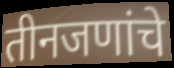
तीनजणांचे